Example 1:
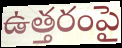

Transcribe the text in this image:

ఉత్తరంపై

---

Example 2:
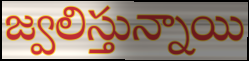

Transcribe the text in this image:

జ్వలిస్తున్నాయి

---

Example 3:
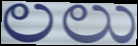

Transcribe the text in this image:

లలు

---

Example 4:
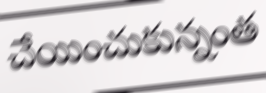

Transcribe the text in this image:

చేయించుకున్నంత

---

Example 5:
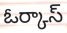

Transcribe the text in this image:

ఓర్కాస్